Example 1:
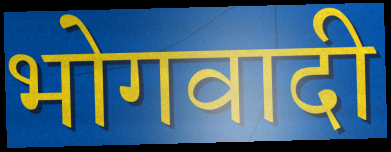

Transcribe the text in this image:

भोगवादी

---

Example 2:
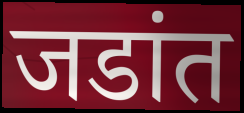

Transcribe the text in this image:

जडांत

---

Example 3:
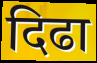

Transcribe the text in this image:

दिढा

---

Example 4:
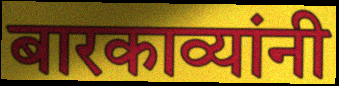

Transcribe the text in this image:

बारकाव्यांनी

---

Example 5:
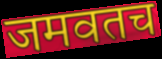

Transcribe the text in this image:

जमवतच